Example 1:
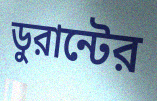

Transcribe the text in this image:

ডুরান্টের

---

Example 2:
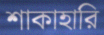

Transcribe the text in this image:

শাকাহারি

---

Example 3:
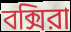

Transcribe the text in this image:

বক্সিরা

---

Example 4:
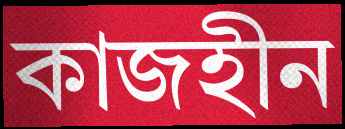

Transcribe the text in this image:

কাজহীন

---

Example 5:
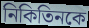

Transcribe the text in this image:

নিকিতিনকে